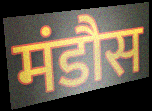
मंडौस